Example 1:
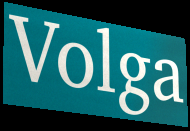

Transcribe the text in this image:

Volga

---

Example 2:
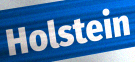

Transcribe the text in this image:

Holstein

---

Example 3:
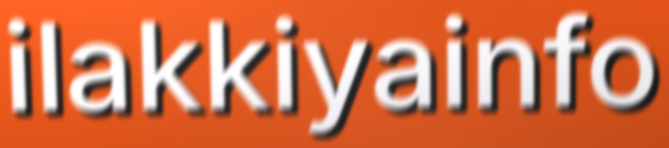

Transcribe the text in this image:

ilakkiyainfo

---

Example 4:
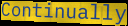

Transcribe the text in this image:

Continually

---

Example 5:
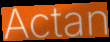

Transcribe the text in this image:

Actan